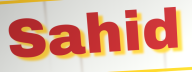
Sahid